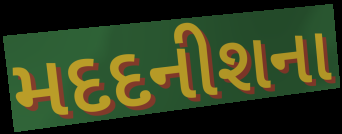
મદદનીશના